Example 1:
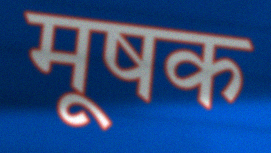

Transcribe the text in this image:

मूषक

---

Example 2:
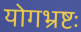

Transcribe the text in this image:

योगभ्रष्टः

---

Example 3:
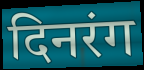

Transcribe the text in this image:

दिनरंग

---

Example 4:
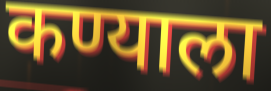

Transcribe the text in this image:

कण्याला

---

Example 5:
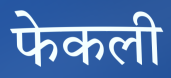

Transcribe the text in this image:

फेकली